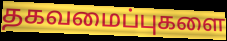
தகவமைப்புகளை